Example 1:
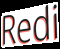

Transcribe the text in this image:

Redi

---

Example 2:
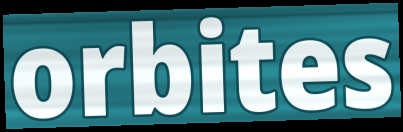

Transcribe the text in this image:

orbites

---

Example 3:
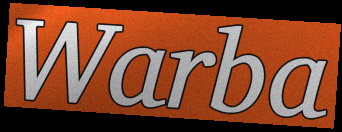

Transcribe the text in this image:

Warba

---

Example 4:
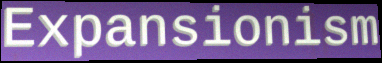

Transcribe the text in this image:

Expansionism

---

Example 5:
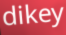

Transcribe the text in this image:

dikey